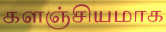
களஞ்சியமாக